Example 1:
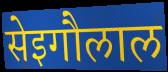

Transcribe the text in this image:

सेइगौलाल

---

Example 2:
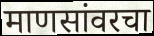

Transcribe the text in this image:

माणसांवरचा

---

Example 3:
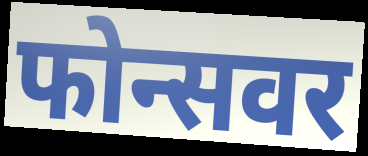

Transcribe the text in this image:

फोन्सवर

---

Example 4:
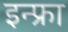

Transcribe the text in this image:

इन्फ्रा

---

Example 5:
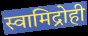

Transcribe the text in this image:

स्वामिद्रोही